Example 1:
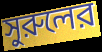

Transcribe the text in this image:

সুরুলের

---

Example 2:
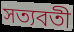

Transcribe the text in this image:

সত্যবতী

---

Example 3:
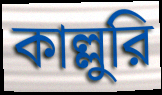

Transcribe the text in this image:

কাল্লুরি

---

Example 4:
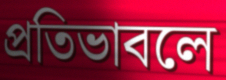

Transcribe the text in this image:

প্রতিভাবলে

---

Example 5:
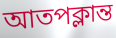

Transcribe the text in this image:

আতপক্লান্ত